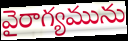
వైరాగ్యమును